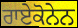
ਰਾਏਕੋਨੇਨ